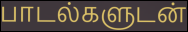
பாடல்களுடன்